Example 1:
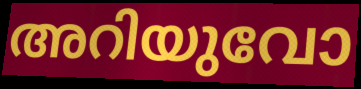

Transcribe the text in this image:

അറിയുവോ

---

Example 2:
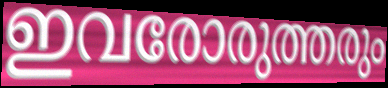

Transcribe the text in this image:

ഇവരോരുത്തരും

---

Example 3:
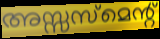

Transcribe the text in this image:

അസ്സസ്മെന്റ്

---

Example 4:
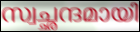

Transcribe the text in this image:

സ്വച്ഛന്ദമായി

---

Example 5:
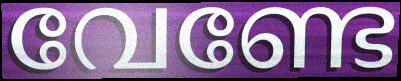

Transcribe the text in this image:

വേണ്ടേ